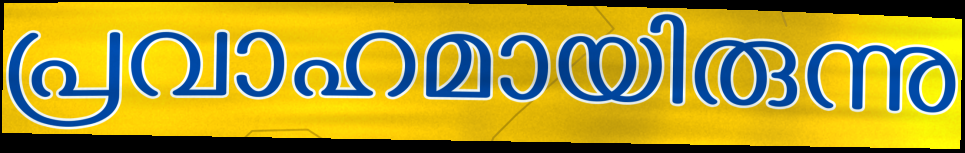
പ്രവാഹമായിരുന്നു